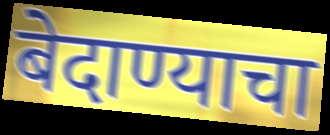
बेदाण्याचा